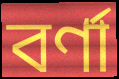
বর্ণা